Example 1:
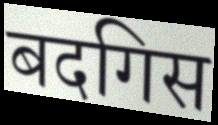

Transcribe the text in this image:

बदगिस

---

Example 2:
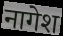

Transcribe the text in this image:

नागेश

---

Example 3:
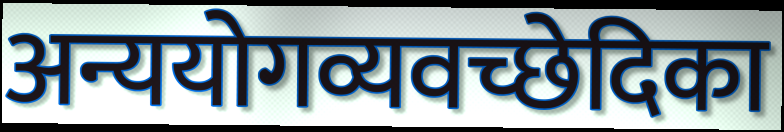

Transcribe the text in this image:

अन्ययोगव्यवच्छेदिका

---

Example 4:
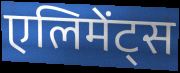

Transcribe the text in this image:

एलिमेंट्स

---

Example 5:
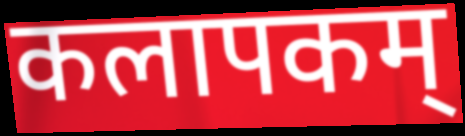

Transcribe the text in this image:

कलापकम्